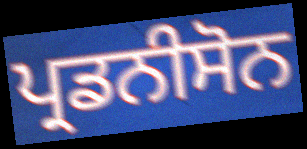
ਪ੍ਰਡਨੀਸੋਨ